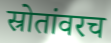
स्रोतांवरच